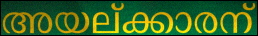
അയല്ക്കാരന്